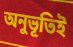
অনুভূতিই